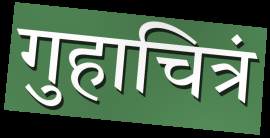
गुहाचित्रं